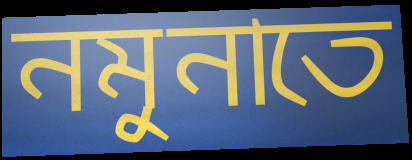
নমুনাতে